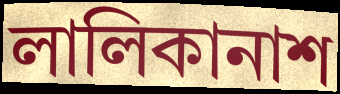
লালিকানাশ